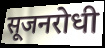
सूजनरोधी